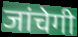
जांचेगी